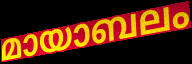
മായാബലം